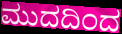
ಮುದದಿಂದ